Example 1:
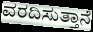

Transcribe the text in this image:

ವರದಿಸುತ್ತಾನೆ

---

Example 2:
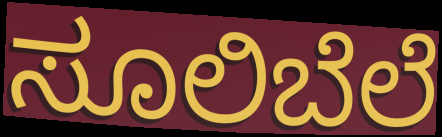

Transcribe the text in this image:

ಸೂಲಿಬೆಲೆ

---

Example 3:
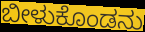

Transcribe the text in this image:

ಬೀಳುಕೊಂಡನು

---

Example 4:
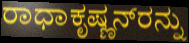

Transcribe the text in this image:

ರಾಧಾಕೃಷ್ಣನ್‌ರನ್ನು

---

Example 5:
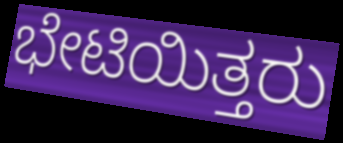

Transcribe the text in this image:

ಭೇಟಿಯಿತ್ತರು